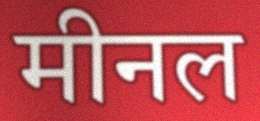
मीनल